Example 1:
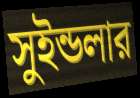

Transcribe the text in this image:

সুইন্ডলার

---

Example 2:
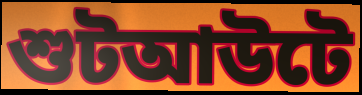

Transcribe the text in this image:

শুটআউটে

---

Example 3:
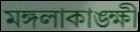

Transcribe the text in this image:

মঙ্গলাকাঙ্ক্ষী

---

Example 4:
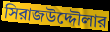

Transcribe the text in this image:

সিরাজউদ্দৌলার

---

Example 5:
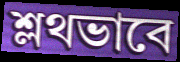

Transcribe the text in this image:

শ্লথভাবে